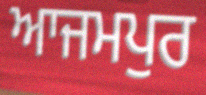
ਆਜਮਪੁਰ